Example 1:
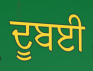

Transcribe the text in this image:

ਦੂਬਈ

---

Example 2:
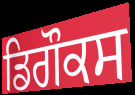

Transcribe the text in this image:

ਡਿਗੌਕਸ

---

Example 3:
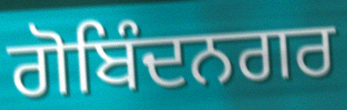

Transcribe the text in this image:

ਗੋਬਿੰਦਨਗਰ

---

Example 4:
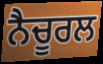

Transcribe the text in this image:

ਨੈਚੂਰਲ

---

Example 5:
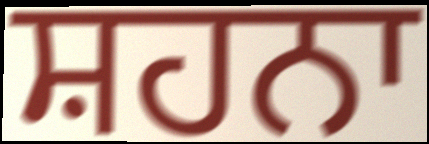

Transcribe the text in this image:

ਸ਼ਹਨਾ